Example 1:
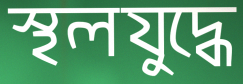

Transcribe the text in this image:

স্থলযুদ্ধে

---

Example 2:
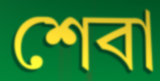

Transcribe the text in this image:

শেবা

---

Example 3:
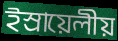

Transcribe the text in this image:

ইস্রায়েলীয়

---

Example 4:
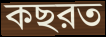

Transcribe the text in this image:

কছরত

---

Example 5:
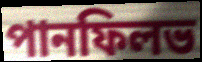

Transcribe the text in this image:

পানফিলভ